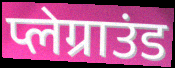
प्लेग्राउंड